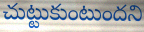
చుట్టుకుంటుందని